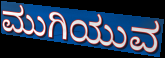
ಮುಗಿಯುವ